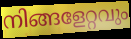
നിങ്ങളേറ്റവും